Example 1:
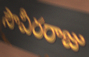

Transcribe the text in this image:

సౌవీరరాజు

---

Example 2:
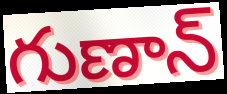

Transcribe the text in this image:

గుణాన్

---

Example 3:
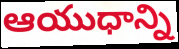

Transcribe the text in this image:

ఆయుధాన్ని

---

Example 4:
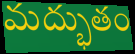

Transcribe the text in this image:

మద్భుతం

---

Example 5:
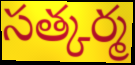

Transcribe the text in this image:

సత్కర్మ